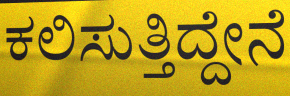
ಕಲಿಸುತ್ತಿದ್ದೇನೆ